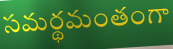
సమర్థమంతంగా